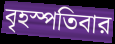
বৃহস্পতিবার